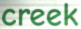
creek